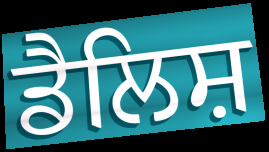
ਡੈਲਿਸ਼